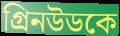
গ্রিনউডকে